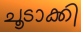
ചൂടാക്കി